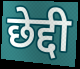
छेद्दी